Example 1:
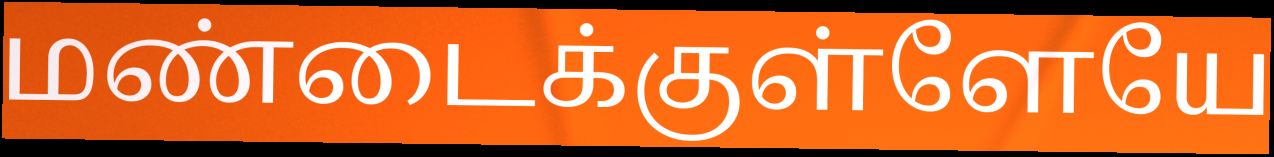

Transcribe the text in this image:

மண்டைக்குள்ளேயே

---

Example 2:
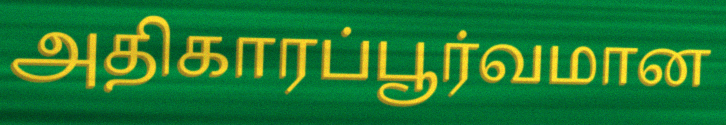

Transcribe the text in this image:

அதிகாரப்பூர்வமான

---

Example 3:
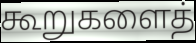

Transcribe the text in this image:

கூறுகளைத்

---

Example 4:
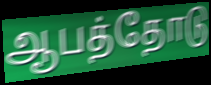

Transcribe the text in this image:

ஆபத்தோடு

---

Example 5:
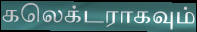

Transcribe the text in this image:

கலெக்டராகவும்